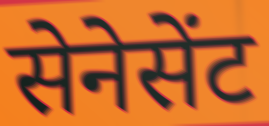
सेनेसेंट